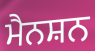
ਮੈਨਸ਼ਨ